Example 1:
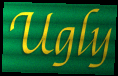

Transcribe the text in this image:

Ugly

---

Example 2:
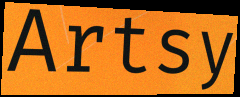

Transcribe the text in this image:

Artsy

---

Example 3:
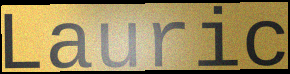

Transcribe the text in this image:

Lauric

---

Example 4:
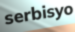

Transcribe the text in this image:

serbisyo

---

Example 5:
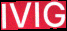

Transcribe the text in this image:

IVIG